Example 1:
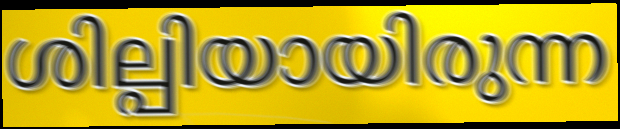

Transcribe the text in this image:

ശില്പിയായിരുന്ന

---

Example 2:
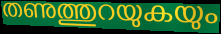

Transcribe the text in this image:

തണുത്തുറയുകയും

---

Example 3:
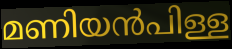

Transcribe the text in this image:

മണിയൻപിള്ള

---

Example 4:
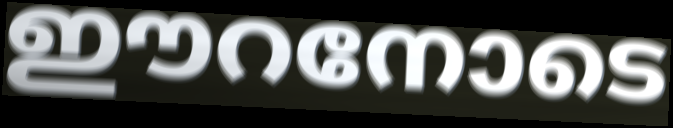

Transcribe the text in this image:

ഈറനോടെ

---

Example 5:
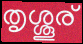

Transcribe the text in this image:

തൃശ്ശൂര്